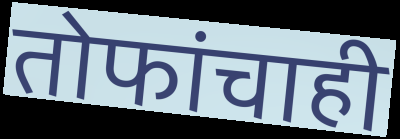
तोफांचाही